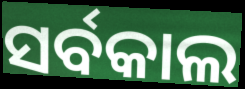
ସର୍ବକାଲ